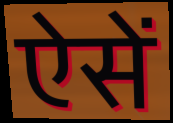
ऐसें